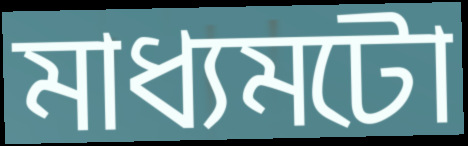
মাধ্যমটো